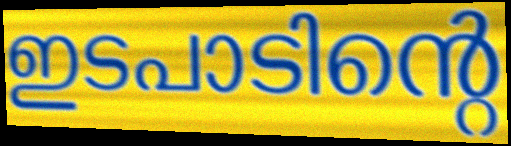
ഇടപാടിന്റെ